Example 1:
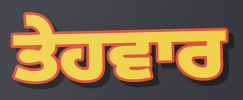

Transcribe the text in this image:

ਤੇਹਵਾਰ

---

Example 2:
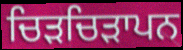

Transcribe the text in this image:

ਚਿੜਚਿੜਾਪਨ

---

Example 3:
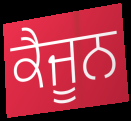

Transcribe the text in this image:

ਕੈਜੂਨ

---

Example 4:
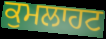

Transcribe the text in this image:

ਕੁਮਲਾਹਟ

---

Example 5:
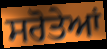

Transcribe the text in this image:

ਸਰੋਤੇਆਂ